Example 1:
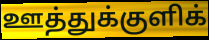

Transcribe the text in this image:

ஊத்துக்குளிக்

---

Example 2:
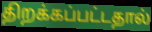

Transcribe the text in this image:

திறக்கப்பட்டதால்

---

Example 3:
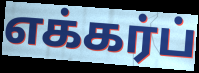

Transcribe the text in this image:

எக்கர்ப்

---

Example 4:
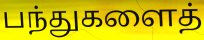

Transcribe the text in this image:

பந்துகளைத்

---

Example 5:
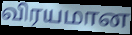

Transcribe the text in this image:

விரயமான